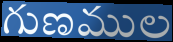
గుణముల